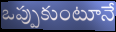
ఒప్పుకుంటూనే